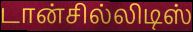
டான்சில்லிடிஸ்